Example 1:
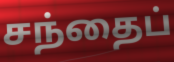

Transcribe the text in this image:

சந்தைப்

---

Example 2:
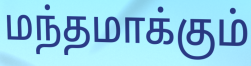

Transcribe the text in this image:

மந்தமாக்கும்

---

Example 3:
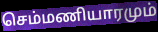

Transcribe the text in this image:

செம்மணியாரமும்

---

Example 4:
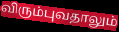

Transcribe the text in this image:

விரும்புவதாலும்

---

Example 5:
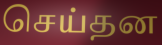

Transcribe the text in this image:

செய்தன